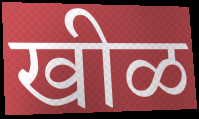
खीळ